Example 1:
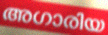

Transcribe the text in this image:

അഗാരിയ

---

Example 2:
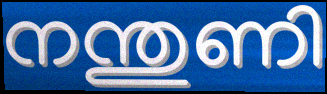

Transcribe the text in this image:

നന്തുണി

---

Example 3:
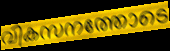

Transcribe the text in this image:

വികസനത്തോടെ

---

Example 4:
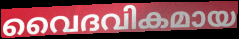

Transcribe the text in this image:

വൈദവികമായ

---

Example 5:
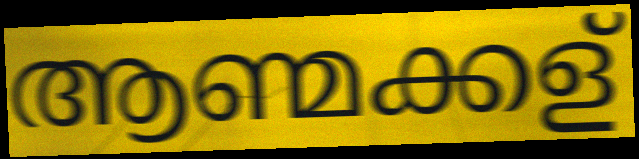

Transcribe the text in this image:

ആണ്മക്കള്